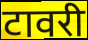
टावरी